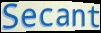
Secant